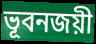
ভূবনজয়ী